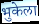
भुकेला